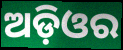
ଅଡ଼ିଓର